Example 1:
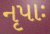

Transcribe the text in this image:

નૃપાઃ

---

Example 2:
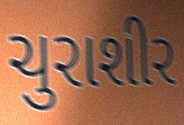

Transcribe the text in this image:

ચુરાશીર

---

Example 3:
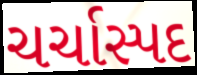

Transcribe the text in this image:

ચર્ચાસ્પદ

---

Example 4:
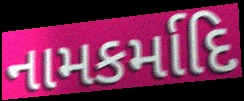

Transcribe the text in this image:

નામકર્માદિ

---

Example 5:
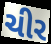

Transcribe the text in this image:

ચીર